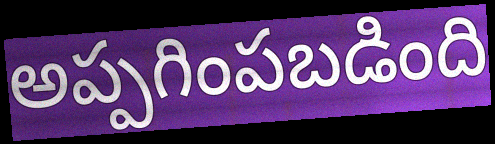
అప్పగింపబడింది